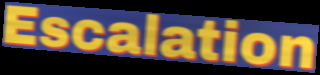
Escalation